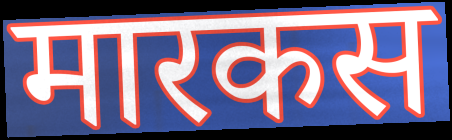
मारकस